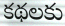
కథలకు